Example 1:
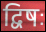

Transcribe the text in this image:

द्विषः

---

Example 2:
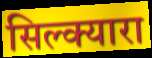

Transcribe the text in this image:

सिल्क्यारा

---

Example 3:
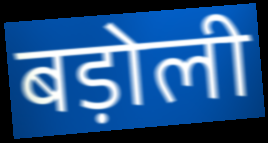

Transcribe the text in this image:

बड़ोली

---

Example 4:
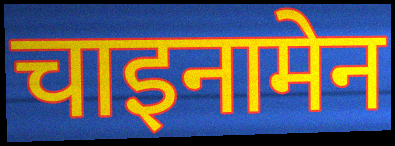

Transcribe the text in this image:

चाइनामेन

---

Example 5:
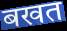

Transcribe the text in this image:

बखत